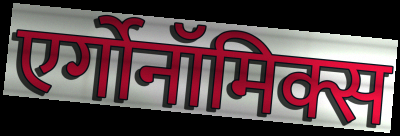
एर्गोनॉमिक्स